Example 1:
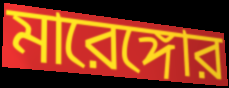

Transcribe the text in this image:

মারেঙ্গোর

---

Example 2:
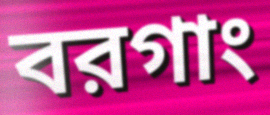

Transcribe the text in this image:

বরগাং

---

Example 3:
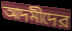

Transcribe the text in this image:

আদমীদের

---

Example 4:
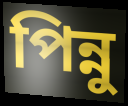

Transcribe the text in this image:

পিন্নু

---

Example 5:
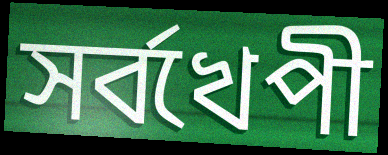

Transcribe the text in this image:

সর্বখেপী